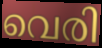
വെരി